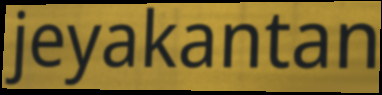
jeyakantan